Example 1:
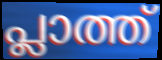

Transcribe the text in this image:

പ്ലാത്ത്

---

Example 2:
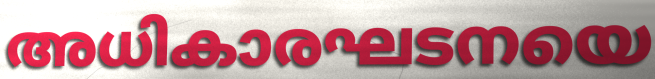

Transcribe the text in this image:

അധികാരഘടനയെ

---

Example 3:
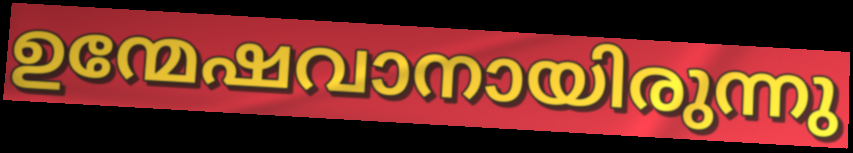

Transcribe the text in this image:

ഉന്മേഷവാനായിരുന്നു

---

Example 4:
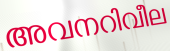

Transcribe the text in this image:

അവനറിവീല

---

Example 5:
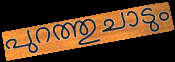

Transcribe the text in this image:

പുറത്തുചാടും